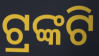
ଟ୍ରଙ୍କଟି